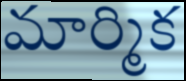
మార్మిక